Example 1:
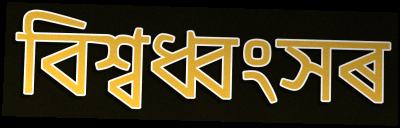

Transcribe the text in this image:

বিশ্বধ্বংসৰ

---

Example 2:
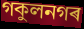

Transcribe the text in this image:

গকুলনগৰ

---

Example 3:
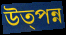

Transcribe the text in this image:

উত্পন্ন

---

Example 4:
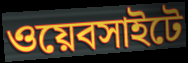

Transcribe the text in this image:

ওয়েবসাইটে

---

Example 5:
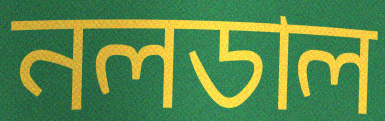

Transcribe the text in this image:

নলডাল